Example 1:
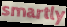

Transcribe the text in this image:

smartly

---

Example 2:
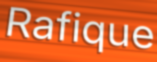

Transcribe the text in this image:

Rafique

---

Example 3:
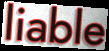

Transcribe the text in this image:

liable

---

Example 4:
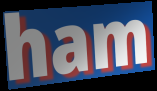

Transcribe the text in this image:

ham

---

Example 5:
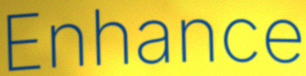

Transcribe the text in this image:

Enhance